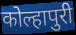
कोल्हापुरी